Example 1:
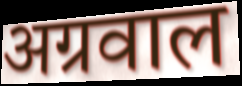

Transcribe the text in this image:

अग्रवाल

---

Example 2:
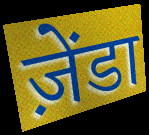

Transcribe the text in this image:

ज़ेंडा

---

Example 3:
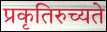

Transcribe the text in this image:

प्रकृतिरुच्यते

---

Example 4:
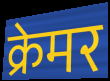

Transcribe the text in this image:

क्रेमर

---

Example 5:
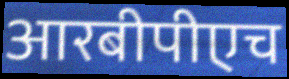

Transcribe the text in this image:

आरबीपीएच